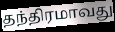
தந்திரமாவது